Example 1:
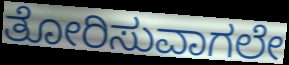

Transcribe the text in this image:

ತೋರಿಸುವಾಗಲೇ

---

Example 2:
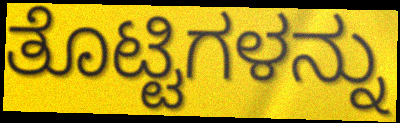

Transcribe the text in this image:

ತೊಟ್ಟಿಗಳನ್ನು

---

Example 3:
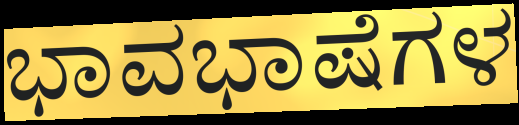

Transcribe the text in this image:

ಭಾವಭಾಷೆಗಳ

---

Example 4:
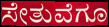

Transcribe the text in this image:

ಸೇತುವೆಗೂ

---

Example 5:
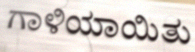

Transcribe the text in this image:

ಗಾಳಿಯಾಯಿತು